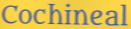
Cochineal